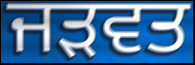
ਜੜਵਤ